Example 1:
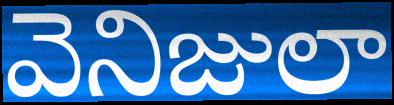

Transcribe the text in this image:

వెనిజులా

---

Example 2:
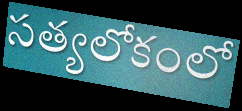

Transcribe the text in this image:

సత్యలోకంలో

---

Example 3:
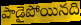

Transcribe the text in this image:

పాడైపోయినది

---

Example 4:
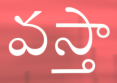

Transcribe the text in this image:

వస్తా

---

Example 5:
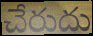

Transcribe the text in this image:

చేరుదు